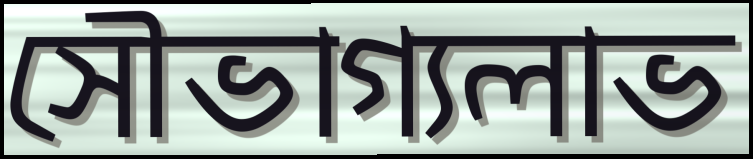
সৌভাগ্যলাভ